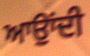
ਆਉਾਂਦੀ